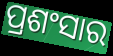
ପ୍ରଶଂସାର